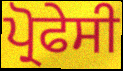
ਪ੍ਰੋਫੇਸੀ